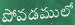
పోవడములో